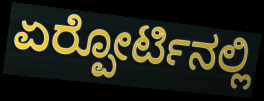
ಏರ್‍ಪೋರ್ಟಿನಲ್ಲಿ